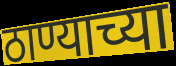
ठाण्याच्या